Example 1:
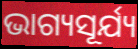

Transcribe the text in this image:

ଭାଗ୍ୟସୂର୍ଯ୍ୟ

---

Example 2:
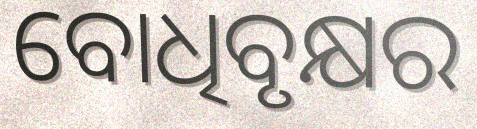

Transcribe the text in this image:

ବୋଧିବୃକ୍ଷର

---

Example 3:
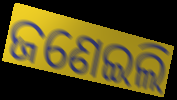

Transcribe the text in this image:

ଜଣେଇଲି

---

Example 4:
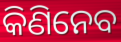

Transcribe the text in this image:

କିଣିନେବ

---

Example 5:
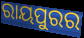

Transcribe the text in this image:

ରାୟପୁରର